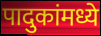
पादुकांमध्ये